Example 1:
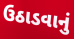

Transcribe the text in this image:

ઉઠાડવાનું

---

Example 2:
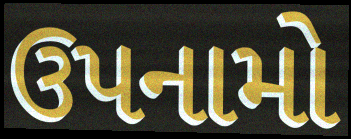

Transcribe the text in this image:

ઉપનામો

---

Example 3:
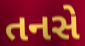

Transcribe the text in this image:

તનસે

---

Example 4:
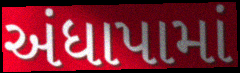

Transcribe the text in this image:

અંધાપામાં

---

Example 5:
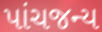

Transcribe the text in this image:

પાંચજન્ય